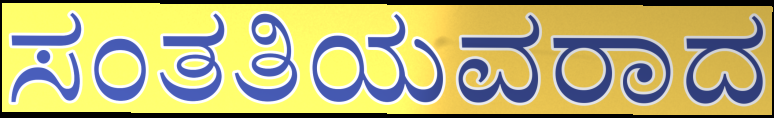
ಸಂತತಿಯವರಾದ